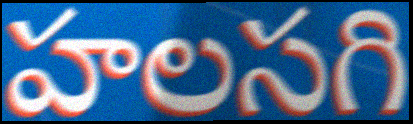
హలసగి